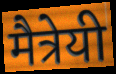
मैत्रेयी